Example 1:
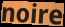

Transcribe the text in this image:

noire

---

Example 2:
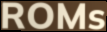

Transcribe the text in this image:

ROMs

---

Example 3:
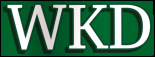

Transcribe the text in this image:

WKD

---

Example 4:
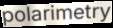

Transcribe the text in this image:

polarimetry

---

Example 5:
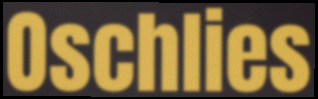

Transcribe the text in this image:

Oschlies